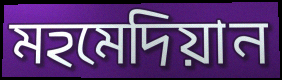
মহমেদিয়ান